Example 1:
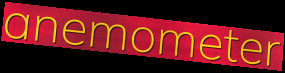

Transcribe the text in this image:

anemometer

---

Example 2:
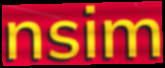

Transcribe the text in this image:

nsim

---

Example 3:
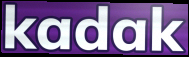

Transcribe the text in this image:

kadak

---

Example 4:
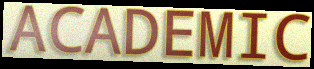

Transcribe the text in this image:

ACADEMIC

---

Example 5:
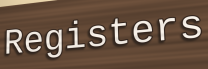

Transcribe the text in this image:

Registers